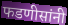
फडणीसांनी